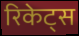
रिकेट्स